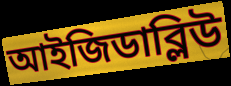
আইজিডাব্লিউ